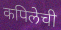
कपिलेची